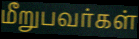
மீறுபவர்கள்